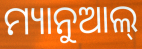
ମ୍ୟାନୁଆଲ୍